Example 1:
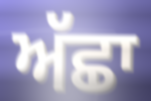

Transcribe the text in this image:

ਅੱਛਾ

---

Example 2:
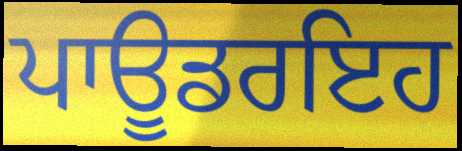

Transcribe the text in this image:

ਪਾਊਡਰਇਹ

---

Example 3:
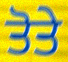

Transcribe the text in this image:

ਤੋਤੇ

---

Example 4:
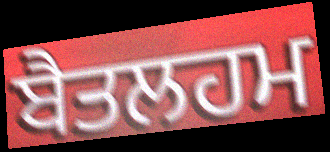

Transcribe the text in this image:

ਬੈਤਲਹਮ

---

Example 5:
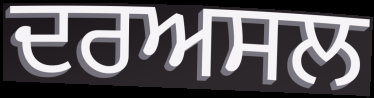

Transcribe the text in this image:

ਦਰਅਸਲ